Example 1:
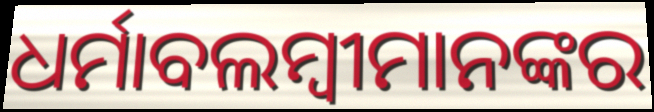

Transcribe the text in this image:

ଧର୍ମାବଲମ୍ବୀମାନଙ୍କର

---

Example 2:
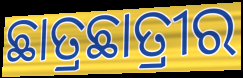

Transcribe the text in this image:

ଛାତ୍ରଛାତ୍ରୀର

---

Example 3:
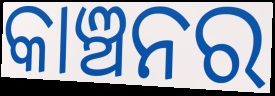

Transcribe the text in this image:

କାଞ୍ଚନର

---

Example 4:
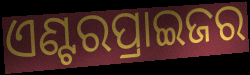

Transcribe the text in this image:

ଏଣ୍ଟରପ୍ରାଇଜର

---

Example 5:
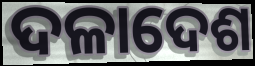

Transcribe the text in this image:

ଦଳାଦେଶ